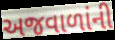
અજવાળાંની